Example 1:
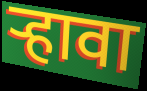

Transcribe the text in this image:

र्‍हावा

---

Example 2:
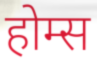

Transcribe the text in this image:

होम्स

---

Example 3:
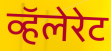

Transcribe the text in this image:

व्हॅलेरेट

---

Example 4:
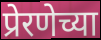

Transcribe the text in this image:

प्रेरणेच्या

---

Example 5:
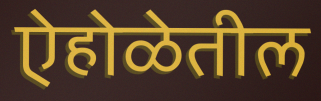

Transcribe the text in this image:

ऐहोळेतील